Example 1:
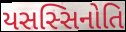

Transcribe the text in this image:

યસસ્સિનોતિ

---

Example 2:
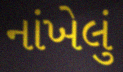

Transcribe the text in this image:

નાંખેલું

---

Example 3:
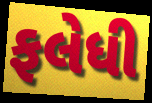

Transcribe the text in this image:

ફલેધી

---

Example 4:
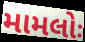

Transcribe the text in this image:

મામલોઃ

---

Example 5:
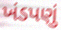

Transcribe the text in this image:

ખંડપણું